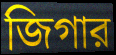
জিগার